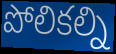
పోలికల్ని